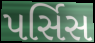
પર્સિસ